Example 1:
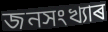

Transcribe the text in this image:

জনসংখ্যাৰ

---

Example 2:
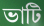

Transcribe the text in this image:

ভাটি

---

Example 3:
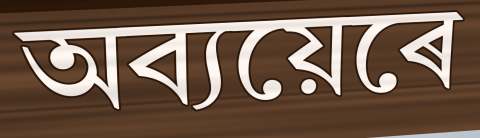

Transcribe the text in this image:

অব্যয়েৰে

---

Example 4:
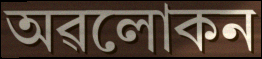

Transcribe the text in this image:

অৱলোকন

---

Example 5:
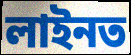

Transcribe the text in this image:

লাইনত